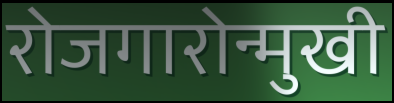
रोजगारोन्मुखी